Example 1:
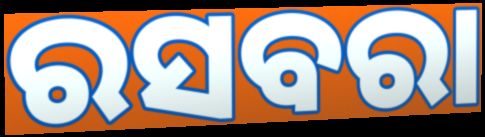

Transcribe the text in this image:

ରସବରା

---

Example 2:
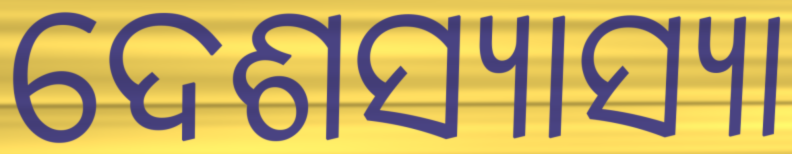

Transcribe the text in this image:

ଦେଶସ୍ୟାସ୍ୟା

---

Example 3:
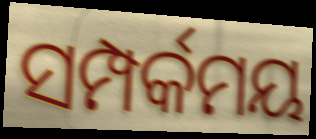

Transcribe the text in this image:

ସମ୍ପର୍କମୟ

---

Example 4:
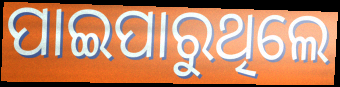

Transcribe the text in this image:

ପାଇପାରୁଥିଲେ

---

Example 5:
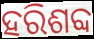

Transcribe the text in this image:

ହରିଶବ୍ଦ